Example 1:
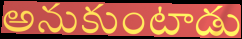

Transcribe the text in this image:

అనుకుంటాడు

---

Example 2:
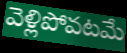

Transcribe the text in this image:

వెళ్లిపోవటమే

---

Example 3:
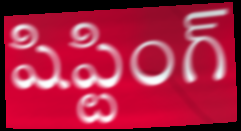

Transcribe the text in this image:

షిప్టింగ్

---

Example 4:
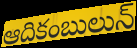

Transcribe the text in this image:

ఆదికంబులున్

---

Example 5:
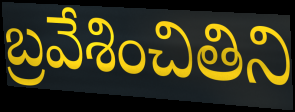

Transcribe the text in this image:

బ్రవేశించితిని